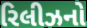
રિલીઝનો